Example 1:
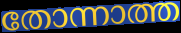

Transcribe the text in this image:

തോന്നാത്ത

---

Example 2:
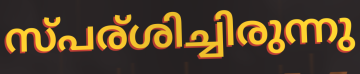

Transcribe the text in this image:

സ്പര്ശിച്ചിരുന്നു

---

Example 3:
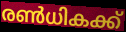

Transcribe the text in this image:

രൺധികക്ക്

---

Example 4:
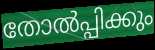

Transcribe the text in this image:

തോൽപ്പിക്കും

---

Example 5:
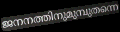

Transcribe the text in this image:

ജനനത്തിനുമുമ്പുതന്നെ